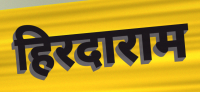
हिरदाराम